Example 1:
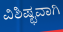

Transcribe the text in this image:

ವಿಶಿಷ್ಟವಾಗಿ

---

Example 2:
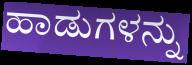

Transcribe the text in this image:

ಹಾಡುಗಳನ್ನು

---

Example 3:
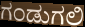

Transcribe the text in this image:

ಗಂಡುಗಲಿ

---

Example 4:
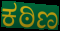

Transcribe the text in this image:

ಕಠಿಣ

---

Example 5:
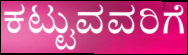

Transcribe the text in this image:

ಕಟ್ಟುವವರಿಗೆ